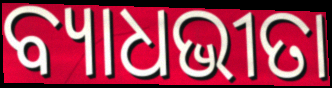
ବ୍ୟାଧଭୀତା